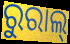
ରୁରାଲ୍